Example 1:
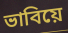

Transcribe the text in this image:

ভাবিয়ে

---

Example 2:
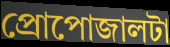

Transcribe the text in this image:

প্রোপোজালটা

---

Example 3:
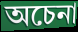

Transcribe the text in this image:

অচেনা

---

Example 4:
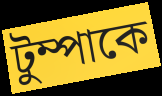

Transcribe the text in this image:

টুম্পাকে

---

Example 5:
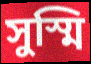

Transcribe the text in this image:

সুস্মি